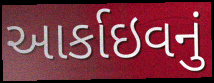
આર્કાઇવનું